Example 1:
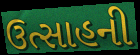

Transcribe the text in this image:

ઉત્સાહની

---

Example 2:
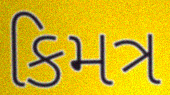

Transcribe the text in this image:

કિમત્ર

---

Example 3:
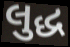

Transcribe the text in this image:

લુદ્ધ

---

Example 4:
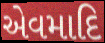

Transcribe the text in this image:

એવમાદિ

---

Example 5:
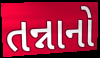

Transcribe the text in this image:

તન્નાનો